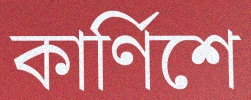
কার্ণিশে